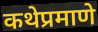
कथेप्रमाणे